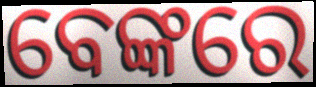
ବେଙ୍କରେ